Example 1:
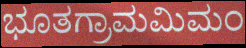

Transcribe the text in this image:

ಭೂತಗ್ರಾಮಮಿಮಂ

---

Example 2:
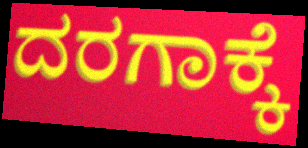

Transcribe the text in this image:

ದರಗಾಕ್ಕೆ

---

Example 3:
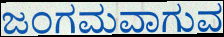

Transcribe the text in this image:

ಜಂಗಮವಾಗುವ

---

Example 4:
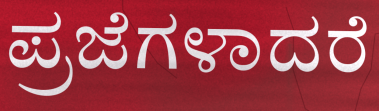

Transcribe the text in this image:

ಪ್ರಜೆಗಳಾದರೆ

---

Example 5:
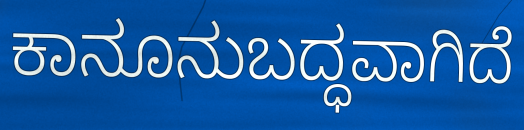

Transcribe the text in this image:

ಕಾನೂನುಬದ್ಧವಾಗಿದೆ